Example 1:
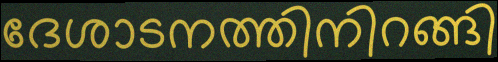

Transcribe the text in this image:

ദേശാടനത്തിനിറങ്ങി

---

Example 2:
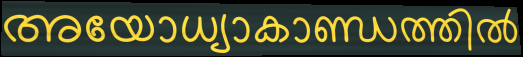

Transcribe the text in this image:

അയോധ്യാകാണ്ഡത്തിൽ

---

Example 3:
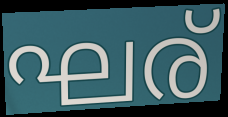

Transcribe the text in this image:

ഘര്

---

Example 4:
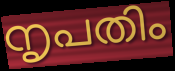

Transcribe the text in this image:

നൃപതിം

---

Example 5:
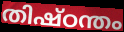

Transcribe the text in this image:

തിഷ്ഠന്തം